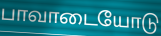
பாவாடையோடு